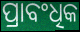
ପ୍ରାବଂଧିକ